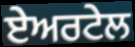
ਏਅਰਟੇਲ